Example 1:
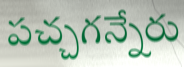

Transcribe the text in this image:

పచ్చగన్నేరు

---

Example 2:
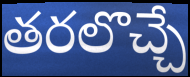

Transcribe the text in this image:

తరలొచ్చే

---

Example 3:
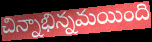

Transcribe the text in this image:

చిన్నాభిన్నమయింది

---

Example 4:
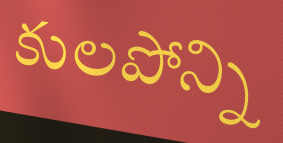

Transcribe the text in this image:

కులపోన్ని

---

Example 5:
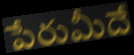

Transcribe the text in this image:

పేరుమీదే